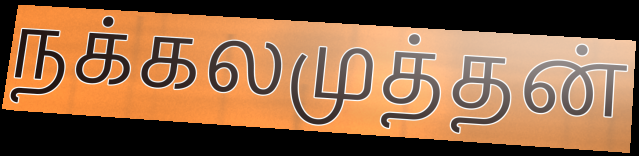
நக்கலமுத்தன்